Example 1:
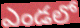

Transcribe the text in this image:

ఎండలో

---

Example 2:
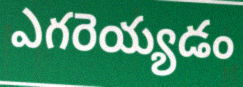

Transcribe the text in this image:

ఎగరెయ్యడం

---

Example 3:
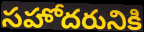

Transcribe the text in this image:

సహోదరునికి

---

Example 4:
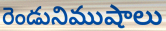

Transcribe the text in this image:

రెండునిముషాలు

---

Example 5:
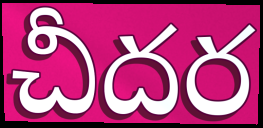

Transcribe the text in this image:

చీదర